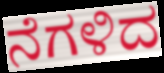
ನೆಗಳಿದ